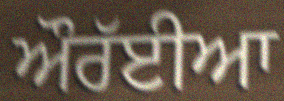
ਔਰੱਈਆ